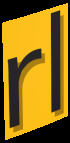
rl